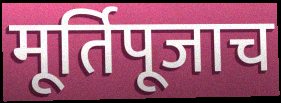
मूर्तिपूजाच